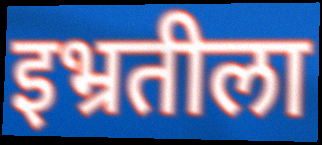
इभ्रतीला